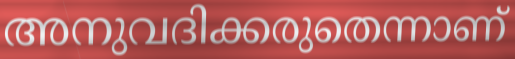
അനുവദിക്കരുതെന്നാണ്